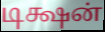
டிக்ஷன்